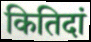
कितिदां